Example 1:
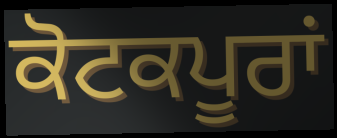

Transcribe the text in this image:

ਕੋਟਕਪੂਰਾਂ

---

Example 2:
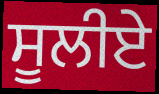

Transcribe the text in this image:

ਸੂਲੀਏ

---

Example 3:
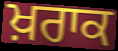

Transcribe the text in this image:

ਖ਼ਰਾਕ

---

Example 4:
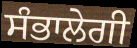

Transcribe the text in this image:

ਸੰਭਾਲੇਗੀ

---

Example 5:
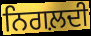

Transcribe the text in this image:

ਨਿਗਲ਼ਦੀ